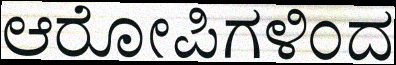
ಆರೋಪಿಗಳಿಂದ